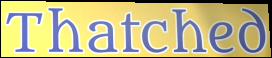
Thatched